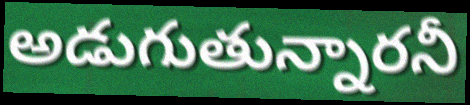
అడుగుతున్నారనీ